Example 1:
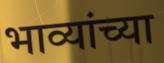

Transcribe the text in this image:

भाव्यांच्या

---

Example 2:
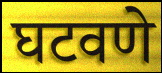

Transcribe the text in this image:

घटवणे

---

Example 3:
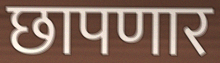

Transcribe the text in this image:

छापणार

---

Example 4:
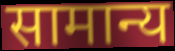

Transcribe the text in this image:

सामान्य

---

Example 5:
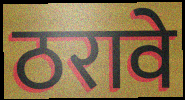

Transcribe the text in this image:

ठरावे